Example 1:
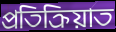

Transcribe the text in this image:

প্ৰতিক্ৰিয়াত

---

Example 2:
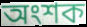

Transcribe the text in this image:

অংশক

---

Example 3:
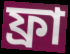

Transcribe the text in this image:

ফ্ৰা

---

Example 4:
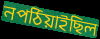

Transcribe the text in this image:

নপঠিয়াইছিল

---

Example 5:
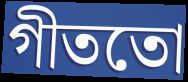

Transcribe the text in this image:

গীততো